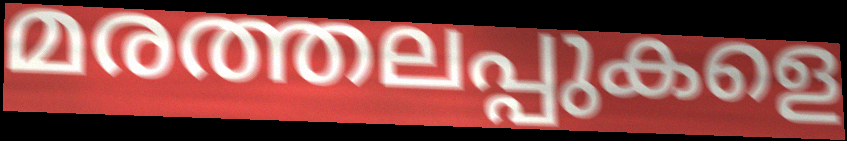
മരത്തലപ്പുകളെ